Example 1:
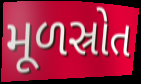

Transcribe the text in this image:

મૂળસ્રોત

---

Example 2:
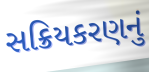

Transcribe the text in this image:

સક્રિયકરણનું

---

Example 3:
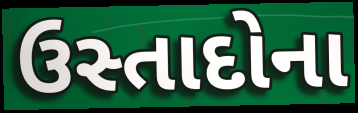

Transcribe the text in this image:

ઉસ્તાદોના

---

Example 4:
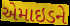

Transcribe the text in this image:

એમાઇડને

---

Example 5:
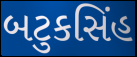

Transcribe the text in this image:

બટુકસિંહ